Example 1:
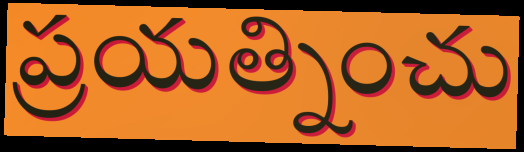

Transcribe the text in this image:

ప్రయత్నించు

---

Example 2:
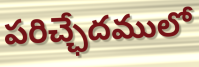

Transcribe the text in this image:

పరిచ్ఛేదములో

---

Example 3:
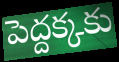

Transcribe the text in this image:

పెద్దక్కకు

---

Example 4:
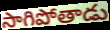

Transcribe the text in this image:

సాగిపోతాడు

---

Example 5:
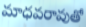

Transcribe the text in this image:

మాధవరావుతో